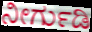
ನೀರ್ಗುಡಿ